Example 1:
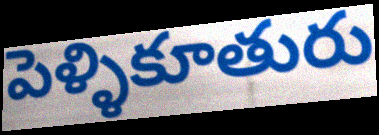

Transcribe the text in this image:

పెళ్ళికూతురు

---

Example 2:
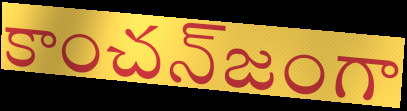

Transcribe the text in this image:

కాంచన్‌జంగా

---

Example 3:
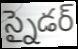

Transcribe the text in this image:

స్నైడర్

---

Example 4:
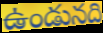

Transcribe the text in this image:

ఉండునది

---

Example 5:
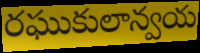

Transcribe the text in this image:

రఘుకులాన్వయ